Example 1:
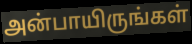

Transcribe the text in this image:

அன்பாயிருங்கள்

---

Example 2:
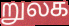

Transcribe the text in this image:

றுலக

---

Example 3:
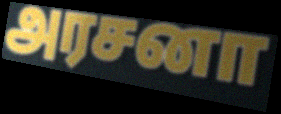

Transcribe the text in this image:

அரசனா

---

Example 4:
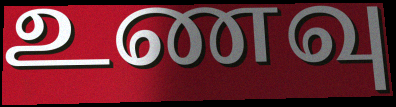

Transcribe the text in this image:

உணவு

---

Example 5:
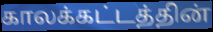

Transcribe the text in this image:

காலக்கட்டத்தின்